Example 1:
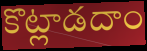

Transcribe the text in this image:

కొట్లాడదాం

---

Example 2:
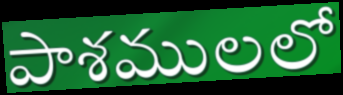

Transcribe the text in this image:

పాశములలో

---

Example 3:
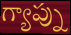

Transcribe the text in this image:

గ్యాప్ను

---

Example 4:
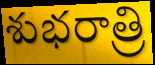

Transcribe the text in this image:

శుభరాత్రి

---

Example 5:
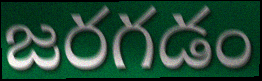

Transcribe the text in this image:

జరగడం